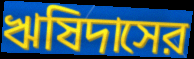
ঋষিদাসের